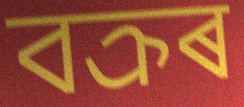
বক্ৰৰ